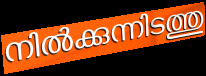
നിൽക്കുന്നിടത്തു